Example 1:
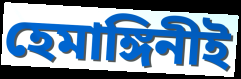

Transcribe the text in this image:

হেমাঙ্গিনীই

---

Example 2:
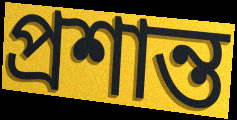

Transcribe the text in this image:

প্রশান্ত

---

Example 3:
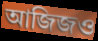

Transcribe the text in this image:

আজিজও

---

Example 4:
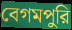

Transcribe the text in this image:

বেগমপুরি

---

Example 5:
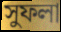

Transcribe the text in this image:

সুফলা